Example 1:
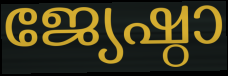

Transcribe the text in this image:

ജ്യേഷ്ഠാ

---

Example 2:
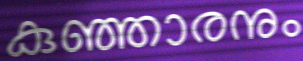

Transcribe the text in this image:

കുഞ്ഞാരനും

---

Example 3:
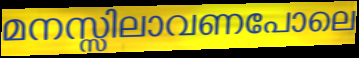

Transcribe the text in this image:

മനസ്സിലാവണപോലെ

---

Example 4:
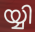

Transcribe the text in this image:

യ്യി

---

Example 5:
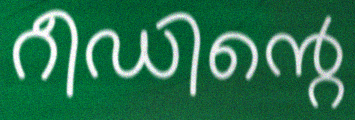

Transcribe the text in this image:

റീഡിന്റെ